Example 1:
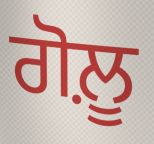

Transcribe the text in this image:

ਗੋਲ਼ੂ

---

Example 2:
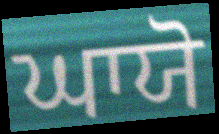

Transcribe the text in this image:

ਘਾਯੋ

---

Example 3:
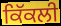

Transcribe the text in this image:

ਕਿੱਕਲੀ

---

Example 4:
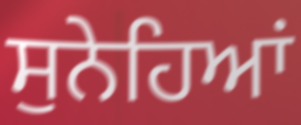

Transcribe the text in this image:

ਸੁਨੇਹਿਆਂ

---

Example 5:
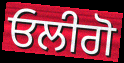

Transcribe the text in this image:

ਓਲੀਗੋ